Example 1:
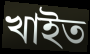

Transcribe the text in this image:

খাইত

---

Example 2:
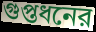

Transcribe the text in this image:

গুপ্তধনের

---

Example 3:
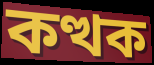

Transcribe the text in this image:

কত্থক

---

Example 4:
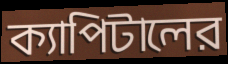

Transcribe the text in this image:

ক্যাপিটালের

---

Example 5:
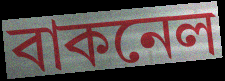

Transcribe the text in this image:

বাকনেল